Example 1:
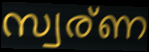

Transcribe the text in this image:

സ്വര്ണ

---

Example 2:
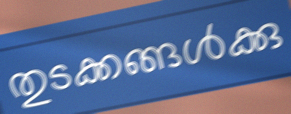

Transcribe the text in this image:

തുടക്കങ്ങൾക്കു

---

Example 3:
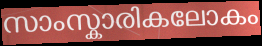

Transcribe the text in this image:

സാംസ്കാരികലോകം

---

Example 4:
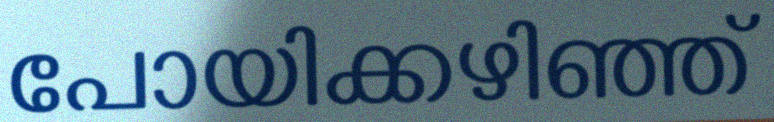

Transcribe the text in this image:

പോയിക്കഴിഞ്ഞ്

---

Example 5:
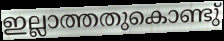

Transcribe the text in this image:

ഇല്ലാത്തതുകൊണ്ടു്